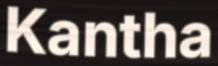
Kantha